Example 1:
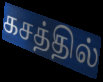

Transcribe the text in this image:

கசத்தில்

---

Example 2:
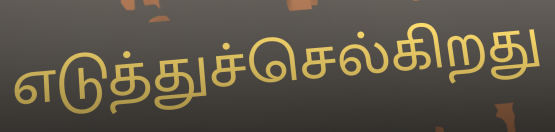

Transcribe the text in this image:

எடுத்துச்செல்கிறது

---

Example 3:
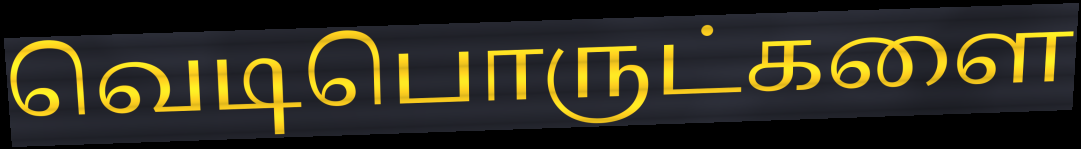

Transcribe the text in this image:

வெடிபொருட்களை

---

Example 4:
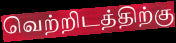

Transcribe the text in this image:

வெற்றிடத்திற்கு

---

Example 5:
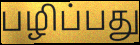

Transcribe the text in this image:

பழிப்பது